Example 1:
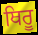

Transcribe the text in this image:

ਥਿਰੂ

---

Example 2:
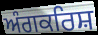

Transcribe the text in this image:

ਅੰਗਕਰਿਸ਼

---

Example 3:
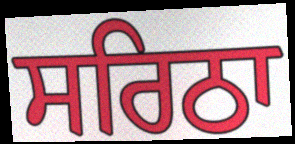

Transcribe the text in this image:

ਸਰਿਠਾ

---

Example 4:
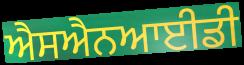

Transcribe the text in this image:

ਐਸਐਨਆਈਡੀ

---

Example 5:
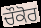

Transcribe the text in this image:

ਚੌਕੋਰ